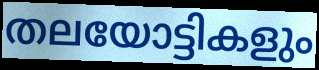
തലയോട്ടികളും